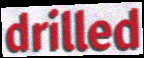
drilled